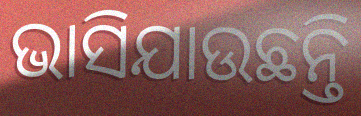
ଭାସିଯାଉଛନ୍ତି